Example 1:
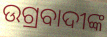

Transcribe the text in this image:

ଉଗ୍ରବାଦୀଙ୍କ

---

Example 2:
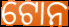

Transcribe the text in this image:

ଟୋନ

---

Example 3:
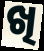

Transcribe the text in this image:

ଖି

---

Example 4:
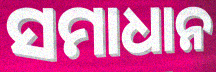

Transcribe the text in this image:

ସମାଧାନ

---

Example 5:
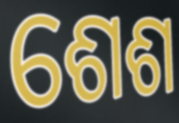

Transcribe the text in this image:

ଶେଶ